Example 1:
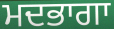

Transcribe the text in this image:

ਮਦਭਾਗਾ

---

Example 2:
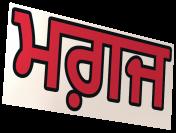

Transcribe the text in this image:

ਮਗ਼ਜ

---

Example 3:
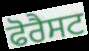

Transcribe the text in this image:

ਫੋਰੈਸਟ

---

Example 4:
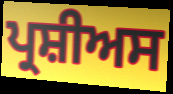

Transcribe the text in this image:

ਪ੍ਰਸ਼ੀਅਸ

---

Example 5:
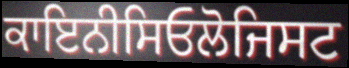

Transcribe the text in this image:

ਕਾਇਨੀਸਿਓਲੋਜਿਸਟ